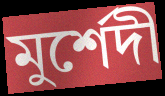
মুর্শেদী